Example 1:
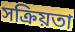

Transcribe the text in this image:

সক্রিয়তা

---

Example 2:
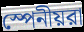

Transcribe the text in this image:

স্পেনীয়রা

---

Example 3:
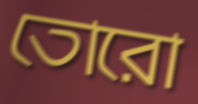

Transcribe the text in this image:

তোরো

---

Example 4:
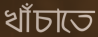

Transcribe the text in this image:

খাঁচাতে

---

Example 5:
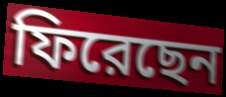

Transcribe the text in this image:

ফিরেছেন